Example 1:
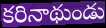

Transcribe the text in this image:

కరినాథుండు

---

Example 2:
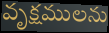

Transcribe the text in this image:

వృక్షములను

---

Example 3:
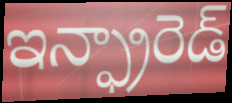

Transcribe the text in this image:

ఇన్ఫ్రారెడ్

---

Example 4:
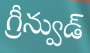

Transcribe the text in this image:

గ్రీన్వుడ్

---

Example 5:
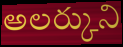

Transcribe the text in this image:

అలర్కుని